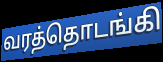
வரத்தொடங்கி